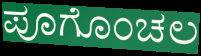
ಪೂಗೊಂಚಲ